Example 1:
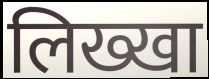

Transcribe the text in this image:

लिख्खा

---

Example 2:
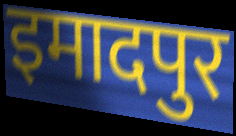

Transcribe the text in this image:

इमादपुर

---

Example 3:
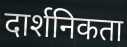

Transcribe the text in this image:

दार्शनिकता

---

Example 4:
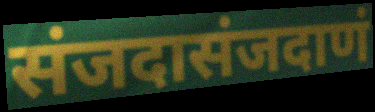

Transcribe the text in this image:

संजदासंजदाणं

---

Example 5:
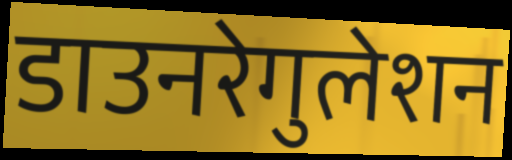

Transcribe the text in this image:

डाउनरेगुलेशन